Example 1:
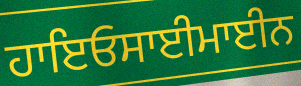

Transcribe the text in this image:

ਹਾਇਓਸਾਈਮਾਈਨ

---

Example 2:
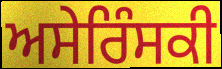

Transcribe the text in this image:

ਅਸੇਰਿੰਸਕੀ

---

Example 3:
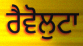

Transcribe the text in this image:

ਰੈਵੋਲੁਟਾ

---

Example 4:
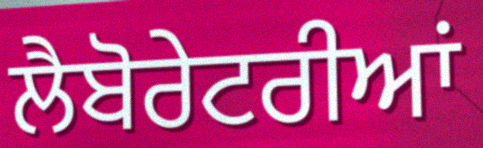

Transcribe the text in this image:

ਲੈਬੋਰੇਟਰੀਆਂ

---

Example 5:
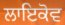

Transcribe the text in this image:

ਲਾਇਕੋਵ